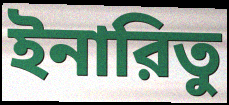
ইনারিতু